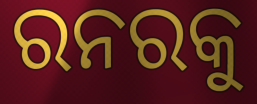
ରନରକୁ